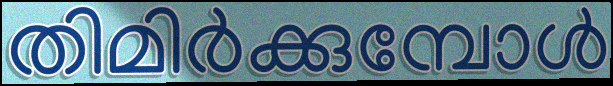
തിമിർക്കുമ്പോൾ